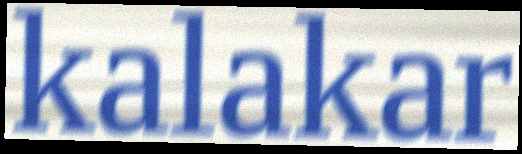
kalakar